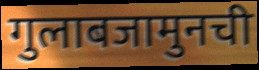
गुलाबजामुनची